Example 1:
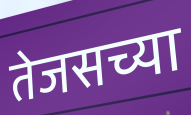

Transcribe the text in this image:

तेजसच्या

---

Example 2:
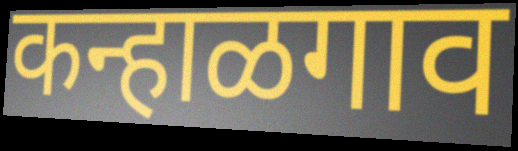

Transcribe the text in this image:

कन्हाळगाव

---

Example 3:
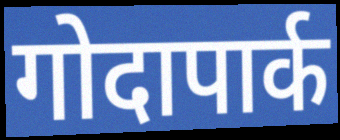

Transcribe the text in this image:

गोदापार्क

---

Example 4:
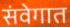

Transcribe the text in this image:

संवेगात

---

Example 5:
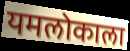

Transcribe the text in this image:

यमलोकाला